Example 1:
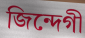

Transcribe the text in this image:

জিন্দেগী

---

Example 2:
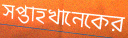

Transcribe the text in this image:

সপ্তাহখানেকের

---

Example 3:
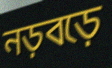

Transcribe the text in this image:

নড়বড়ে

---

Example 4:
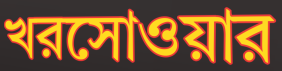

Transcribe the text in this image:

খরসোওয়ার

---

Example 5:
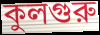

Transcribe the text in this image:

কুলগুরু